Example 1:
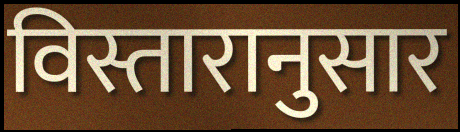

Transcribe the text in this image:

विस्तारानुसार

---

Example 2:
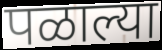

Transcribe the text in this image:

पळाल्या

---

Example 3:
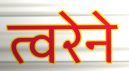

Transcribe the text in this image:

त्वरेने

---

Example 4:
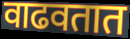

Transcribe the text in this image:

वाढवतात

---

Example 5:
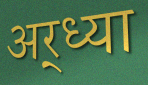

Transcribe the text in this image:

अर्ध्या